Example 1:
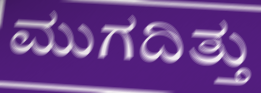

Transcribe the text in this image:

ಮುಗದಿತ್ತು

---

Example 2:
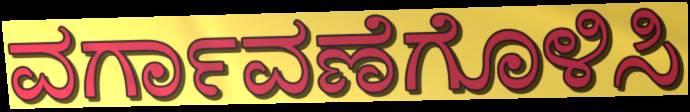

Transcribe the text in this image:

ವರ್ಗಾವಣೆಗೊಳಿಸಿ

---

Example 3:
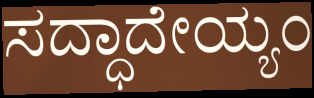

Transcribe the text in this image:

ಸದ್ಧಾದೇಯ್ಯಂ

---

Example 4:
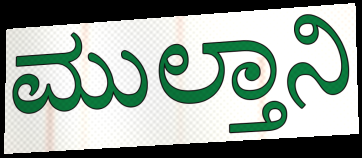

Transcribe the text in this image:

ಮುಲ್ತಾನಿ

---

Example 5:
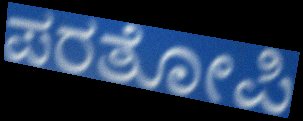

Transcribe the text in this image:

ಪರತೋಪಿ